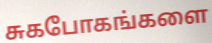
சுகபோகங்களை